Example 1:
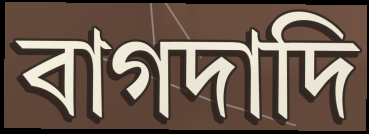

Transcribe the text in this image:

বাগদাদি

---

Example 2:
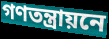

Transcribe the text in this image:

গণতন্ত্রায়নে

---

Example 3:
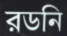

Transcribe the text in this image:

রডনি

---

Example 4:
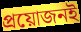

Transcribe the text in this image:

প্রয়োজনই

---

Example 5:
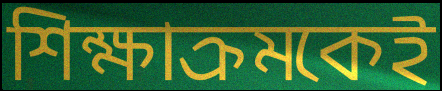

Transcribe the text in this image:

শিক্ষাক্রমকেই